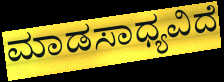
ಮಾಡಸಾಧ್ಯವಿದೆ